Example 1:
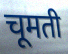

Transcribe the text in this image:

चूमती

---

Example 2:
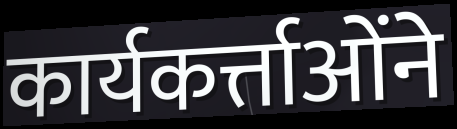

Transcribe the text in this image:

कार्यकर्त्ताओंने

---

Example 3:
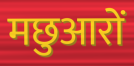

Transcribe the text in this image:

मछुआरों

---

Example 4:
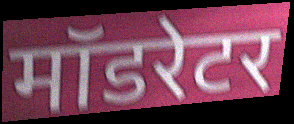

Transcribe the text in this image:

मॉडरेटर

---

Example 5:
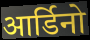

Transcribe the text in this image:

आर्डिनो